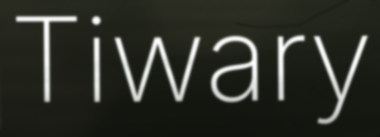
Tiwary